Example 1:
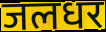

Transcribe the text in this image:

जलधर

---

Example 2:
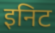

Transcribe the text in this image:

इनिट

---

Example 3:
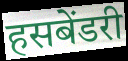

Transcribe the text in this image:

हसबेंडरी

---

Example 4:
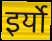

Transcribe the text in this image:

इर्यो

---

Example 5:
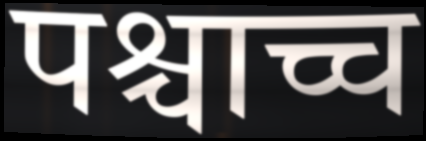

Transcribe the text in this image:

पश्चाच्च